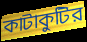
কাটাকুটির